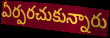
ఏర్పరచుకున్నారు